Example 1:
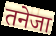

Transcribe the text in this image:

तनेजा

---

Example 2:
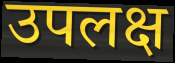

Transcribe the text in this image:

उपलक्ष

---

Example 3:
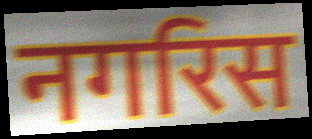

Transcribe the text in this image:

नगरिस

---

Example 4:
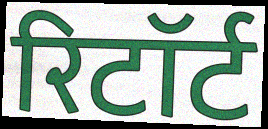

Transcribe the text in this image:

रिटॉर्ट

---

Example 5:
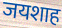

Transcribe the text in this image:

जयशाह